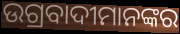
ଉଗ୍ରବାଦୀମାନଙ୍କର